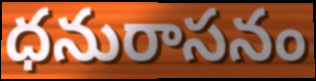
ధనురాసనం